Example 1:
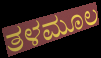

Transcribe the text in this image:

ತಳಮೂಲ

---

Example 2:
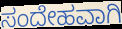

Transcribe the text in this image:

ಸಂದೇಹವಾಗಿ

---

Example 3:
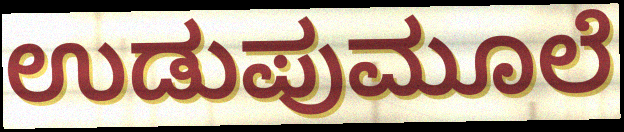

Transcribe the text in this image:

ಉಡುಪುಮೂಲೆ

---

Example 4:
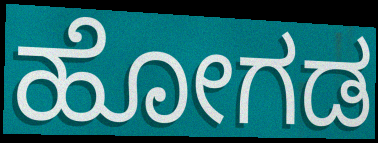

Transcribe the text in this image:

ಹೋಗಡ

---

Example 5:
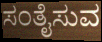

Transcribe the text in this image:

ಸಂತೈಸುವ